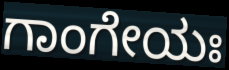
ಗಾಂಗೇಯಃ